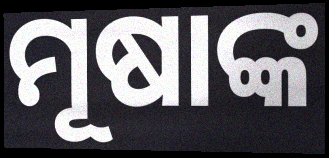
ମୂଷାଙ୍କ